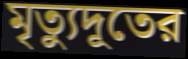
মৃত্যুদূতের